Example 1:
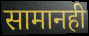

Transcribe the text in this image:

सामानही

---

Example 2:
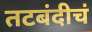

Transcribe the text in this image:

तटबंदीचं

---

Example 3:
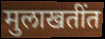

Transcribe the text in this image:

मुलाखतींत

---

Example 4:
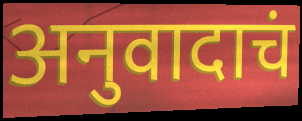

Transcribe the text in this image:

अनुवादाचं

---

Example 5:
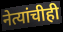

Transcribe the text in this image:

नेत्यांचीही